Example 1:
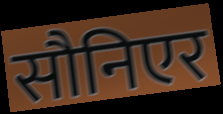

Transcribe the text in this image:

सौनिएर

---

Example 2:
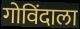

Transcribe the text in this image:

गोविंदाला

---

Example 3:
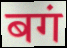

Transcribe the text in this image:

बगं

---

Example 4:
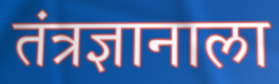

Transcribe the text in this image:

तंत्रज्ञानाला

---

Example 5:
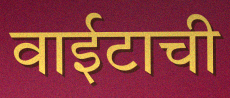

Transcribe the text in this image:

वाईटाची